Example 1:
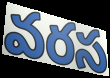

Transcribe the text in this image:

వరస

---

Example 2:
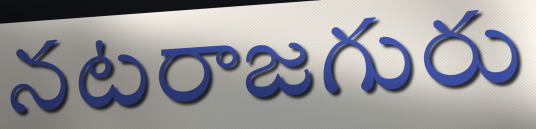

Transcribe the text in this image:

నటరాజగురు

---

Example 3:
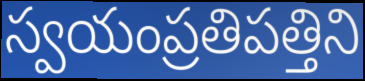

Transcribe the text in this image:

స్వయంప్రతిపత్తిని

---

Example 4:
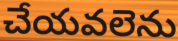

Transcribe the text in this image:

చేయవలెను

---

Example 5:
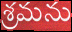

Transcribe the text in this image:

శ్రమను